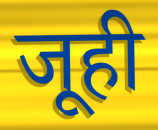
जूही